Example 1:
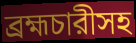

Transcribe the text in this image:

ব্রহ্মচারীসহ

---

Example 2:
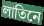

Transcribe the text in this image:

লাতিনে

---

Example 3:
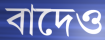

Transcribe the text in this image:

বাদেও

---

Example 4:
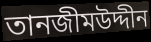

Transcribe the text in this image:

তানজীমউদ্দীন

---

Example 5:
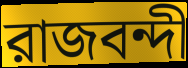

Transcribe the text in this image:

রাজবন্দী